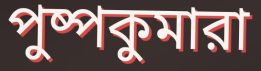
পুষ্পকুমারা